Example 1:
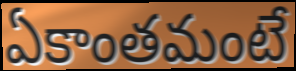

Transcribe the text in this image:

ఏకాంతమంటే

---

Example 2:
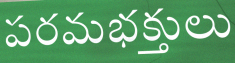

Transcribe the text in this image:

పరమభక్తులు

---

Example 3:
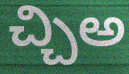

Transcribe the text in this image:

చ్చిఅ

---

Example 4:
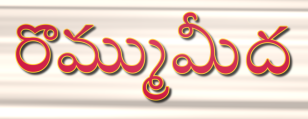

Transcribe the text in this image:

రొమ్ముమీద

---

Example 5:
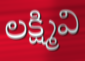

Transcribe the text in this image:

లక్ష్మివి